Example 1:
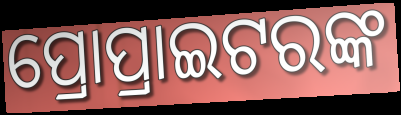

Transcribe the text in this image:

ପ୍ରୋପ୍ରାଇଟରଙ୍କ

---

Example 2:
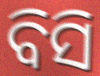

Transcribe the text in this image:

ବିସି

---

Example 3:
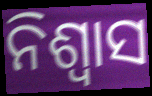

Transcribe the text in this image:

ନିଶ୍ଵାସ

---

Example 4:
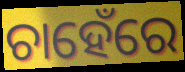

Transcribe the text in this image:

ଚାହେଁରେ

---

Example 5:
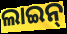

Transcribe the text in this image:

ଲାଇନ୍